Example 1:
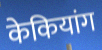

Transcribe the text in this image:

केकियांग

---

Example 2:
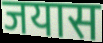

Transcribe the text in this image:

जयास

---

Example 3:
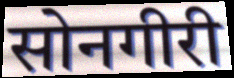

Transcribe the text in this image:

सोनगीरी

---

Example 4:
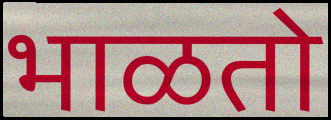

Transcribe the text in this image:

भाळतो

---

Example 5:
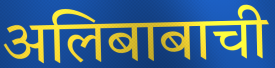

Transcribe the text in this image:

अलिबाबाची